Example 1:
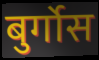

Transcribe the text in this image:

बुर्गोस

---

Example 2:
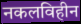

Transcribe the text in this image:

नकलविहीन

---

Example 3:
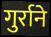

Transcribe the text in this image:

गुर्राने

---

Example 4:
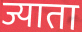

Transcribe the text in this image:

ज्याता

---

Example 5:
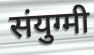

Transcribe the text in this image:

संयुग्मी